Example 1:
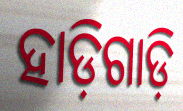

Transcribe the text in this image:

ହାଡ଼ିଗାଡ଼ି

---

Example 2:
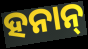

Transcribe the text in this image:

ହନାନ୍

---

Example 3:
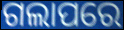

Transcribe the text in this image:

ଗଲାପରେ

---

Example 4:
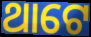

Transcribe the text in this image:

ଥାଟେ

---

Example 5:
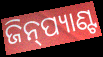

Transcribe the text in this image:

ଜିନ୍‍ପ୍ୟାଣ୍ଟ